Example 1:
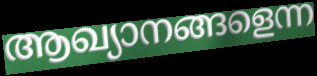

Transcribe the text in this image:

ആഖ്യാനങ്ങളെന്ന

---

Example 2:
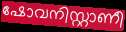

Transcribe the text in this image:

ഷോവനിസ്റ്റാണീ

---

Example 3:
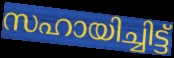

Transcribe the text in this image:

സഹായിച്ചിട്ട്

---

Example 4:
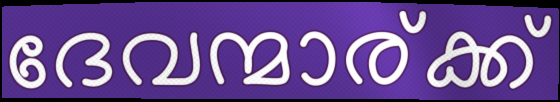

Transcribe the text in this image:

ദേവന്മാര്ക്ക്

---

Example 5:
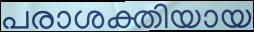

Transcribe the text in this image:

പരാശക്തിയായ